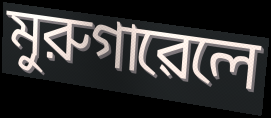
মুৰুগাৱেলে